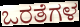
ಒರತೆಗಳ